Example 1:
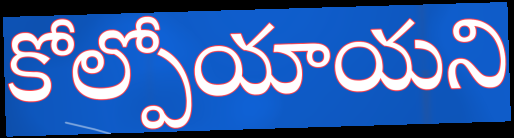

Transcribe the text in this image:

కోల్పోయాయని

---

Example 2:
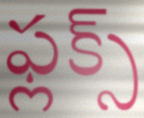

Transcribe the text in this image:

ఫ్లక్స్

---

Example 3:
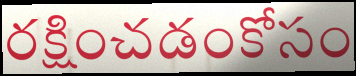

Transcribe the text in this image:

రక్షించడంకోసం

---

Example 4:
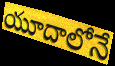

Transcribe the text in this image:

యూదాలోనే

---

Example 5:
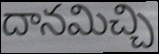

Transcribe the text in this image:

దానమిచ్చి